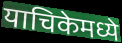
याचिकेमध्ये